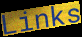
Links